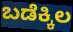
ಬಡೆಕ್ಕಿಲ